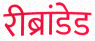
रीब्रांडेड